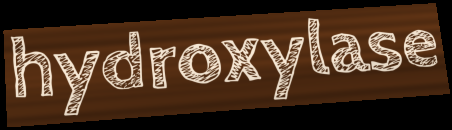
hydroxylase